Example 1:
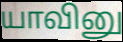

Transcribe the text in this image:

யாவினு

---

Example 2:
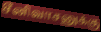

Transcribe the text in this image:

சீனிவாசனுக்கு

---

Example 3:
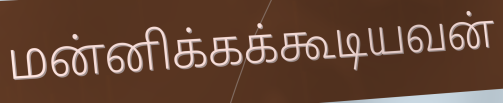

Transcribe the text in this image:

மன்னிக்கக்கூடியவன்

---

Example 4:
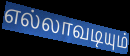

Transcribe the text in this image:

எல்லாவடியும்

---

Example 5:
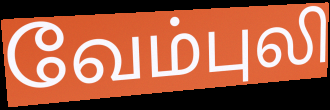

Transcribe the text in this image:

வேம்புலி